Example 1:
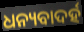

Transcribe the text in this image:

ଧନ୍ୟବାଦର୍ହ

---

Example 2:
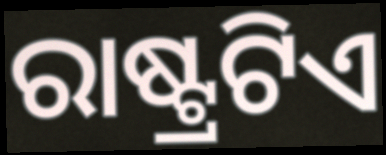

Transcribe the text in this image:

ରାଷ୍ଟ୍ରଟିଏ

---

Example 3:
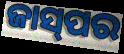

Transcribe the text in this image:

ଜାସ୍‌ପର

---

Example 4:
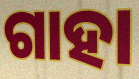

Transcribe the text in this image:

ଗାହା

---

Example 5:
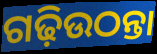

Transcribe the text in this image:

ଗଢ଼ିଉଠନ୍ତା